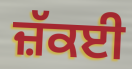
ਜ਼ੱਕਈ